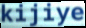
kijiye